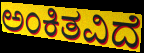
ಅಂಕಿತವಿದೆ